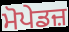
ਮੋਪੇਡਜ਼